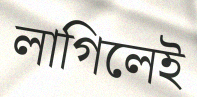
লাগিলেই